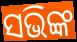
ସଭିଙ୍କ